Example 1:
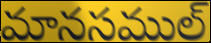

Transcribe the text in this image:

మానసముల్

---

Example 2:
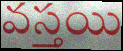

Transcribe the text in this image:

వస్తయి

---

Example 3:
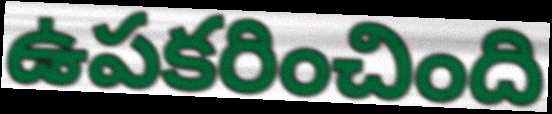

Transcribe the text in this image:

ఉపకరించింది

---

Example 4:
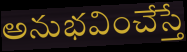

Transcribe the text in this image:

అనుభవించేస్తే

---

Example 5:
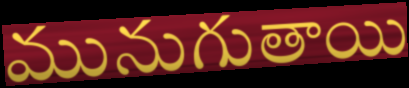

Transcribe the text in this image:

మునుగుతాయి